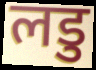
लडु